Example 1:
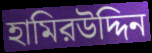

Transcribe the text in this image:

হামিরউদ্দিন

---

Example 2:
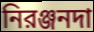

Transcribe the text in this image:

নিরঞ্জনদা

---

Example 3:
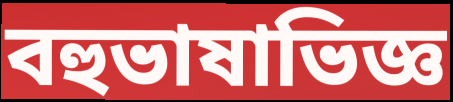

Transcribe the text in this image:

বহুভাষাভিজ্ঞ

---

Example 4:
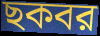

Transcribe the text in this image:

ছকবর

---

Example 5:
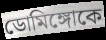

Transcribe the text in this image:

ডোমিঙ্গোকে